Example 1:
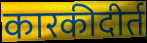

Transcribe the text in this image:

कारकीदीर्त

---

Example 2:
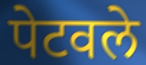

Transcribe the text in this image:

पेटवले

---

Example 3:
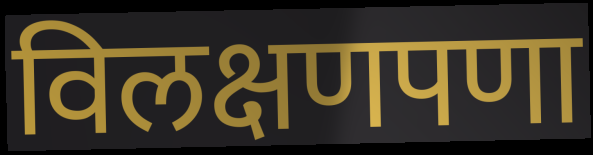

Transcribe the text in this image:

विलक्षणपणा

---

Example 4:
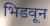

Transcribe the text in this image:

भिडवून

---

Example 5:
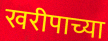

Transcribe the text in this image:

खरीपाच्या